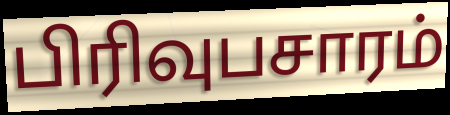
பிரிவுபசாரம்